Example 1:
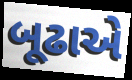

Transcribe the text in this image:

બૂઢાએ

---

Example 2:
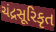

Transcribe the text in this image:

ચંદ્રસૂરિકૃત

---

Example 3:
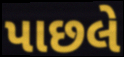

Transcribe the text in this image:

પાછલે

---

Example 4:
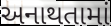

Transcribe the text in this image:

અનાથતામાં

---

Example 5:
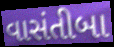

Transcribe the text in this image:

વાસંતીબા